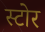
स्टोर